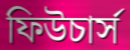
ফিউচার্স